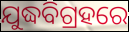
ଯୁଦ୍ଧବିଗ୍ରହରେ